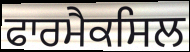
ਫਾਰਮੈਕਸਿਲ